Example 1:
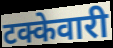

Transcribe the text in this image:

टक्केवारी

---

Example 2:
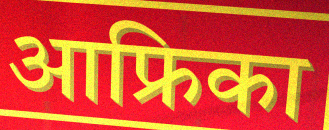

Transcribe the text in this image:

आफ्रिका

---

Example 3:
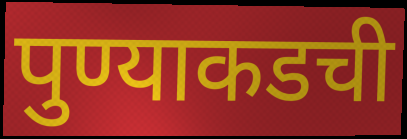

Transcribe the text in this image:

पुण्याकडची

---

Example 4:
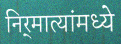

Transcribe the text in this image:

निर्मात्यांमध्ये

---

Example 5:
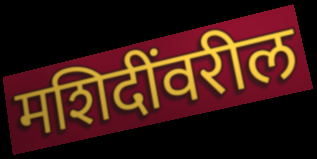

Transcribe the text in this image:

मशिदींवरील